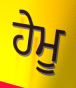
ਹੇਮੂ